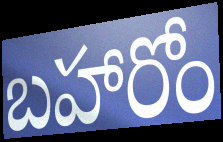
బహారోం